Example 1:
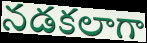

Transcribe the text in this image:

నడకలాగా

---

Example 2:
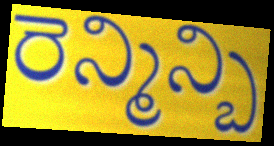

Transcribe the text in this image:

రెన్మిన్బి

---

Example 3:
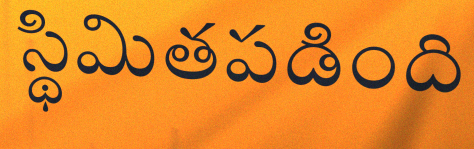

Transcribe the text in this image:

స్థిమితపడింది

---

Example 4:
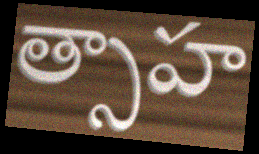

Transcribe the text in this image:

త్సాహ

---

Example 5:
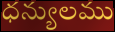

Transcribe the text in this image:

ధన్యులము